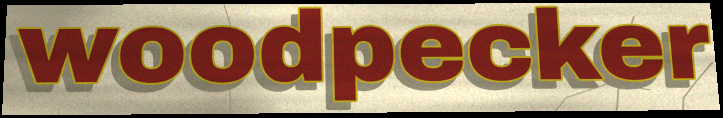
woodpecker